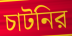
চাটনির